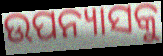
ଉପନ୍ୟାସକୁ